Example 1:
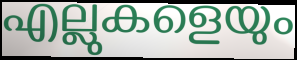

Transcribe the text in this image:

എല്ലുകളെയും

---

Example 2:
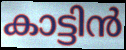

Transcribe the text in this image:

കാട്ടിൻ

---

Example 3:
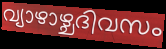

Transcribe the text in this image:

വ്യാഴാഴ്ചദിവസം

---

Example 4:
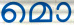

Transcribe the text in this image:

മൊ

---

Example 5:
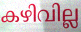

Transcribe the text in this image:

കഴിവില്ല